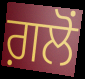
ਗ਼ਲੋਂ